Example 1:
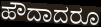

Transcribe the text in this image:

ಹೌದಾದರೂ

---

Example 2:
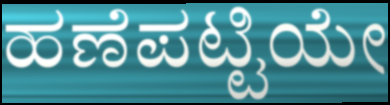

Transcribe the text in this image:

ಹಣೆಪಟ್ಟಿಯೇ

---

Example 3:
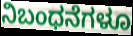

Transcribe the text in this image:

ನಿಬಂಧನೆಗಳೂ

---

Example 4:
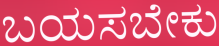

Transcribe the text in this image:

ಬಯಸಬೇಕು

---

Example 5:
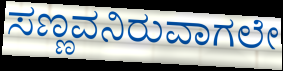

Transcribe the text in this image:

ಸಣ್ಣವನಿರುವಾಗಲೇ